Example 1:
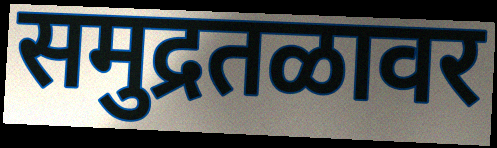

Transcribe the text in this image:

समुद्रतळावर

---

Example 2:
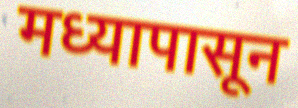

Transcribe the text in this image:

मध्यापासून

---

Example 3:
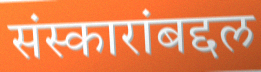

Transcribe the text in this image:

संस्कारांबद्दल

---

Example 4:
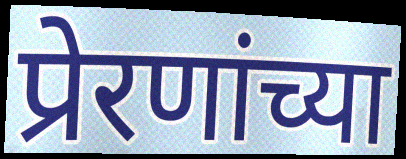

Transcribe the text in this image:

प्रेरणांच्या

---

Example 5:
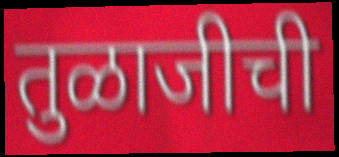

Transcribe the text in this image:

तुळाजीची